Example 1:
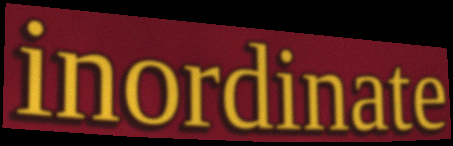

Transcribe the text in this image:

inordinate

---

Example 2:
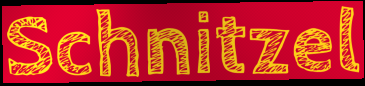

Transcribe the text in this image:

Schnitzel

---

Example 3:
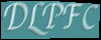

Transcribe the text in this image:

DLPFC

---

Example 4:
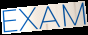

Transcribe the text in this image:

EXAM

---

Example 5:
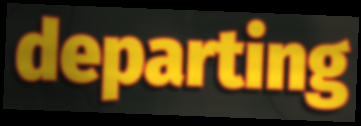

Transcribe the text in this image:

departing